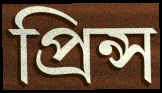
প্রিন্স